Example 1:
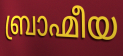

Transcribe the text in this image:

ബ്രാഹ്മീയ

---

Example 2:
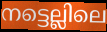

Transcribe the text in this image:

നട്ടെല്ലിലെ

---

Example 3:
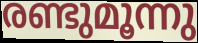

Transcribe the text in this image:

രണ്ടുമൂന്നു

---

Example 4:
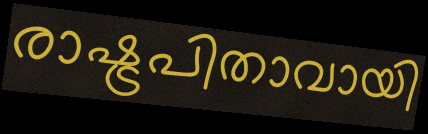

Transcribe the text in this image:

രാഷ്ട്രപിതാവായി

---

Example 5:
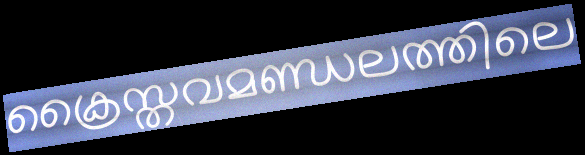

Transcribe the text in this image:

ക്രൈസ്തവമണ്ഡലത്തിലെ